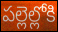
పల్లెల్లోకి